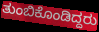
ತುಂಬಿಕೊಂಡಿದ್ದರು